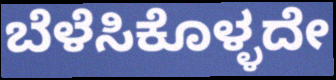
ಬೆಳೆಸಿಕೊಳ್ಳದೇ